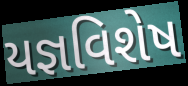
યજ્ઞવિશેષ